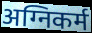
अग्निकर्म